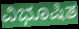
ವಿಭೂಷಿತ